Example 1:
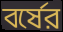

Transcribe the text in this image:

বর্ষের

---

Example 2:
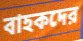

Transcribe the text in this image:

বাহকদের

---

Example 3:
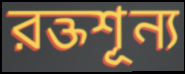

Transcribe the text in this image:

রক্তশূন্য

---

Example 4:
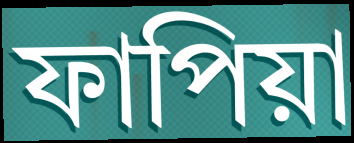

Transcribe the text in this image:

ফাপিয়া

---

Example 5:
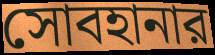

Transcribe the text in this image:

সোবহানার